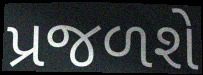
પ્રજળશે